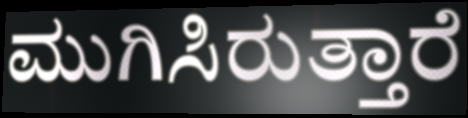
ಮುಗಿಸಿರುತ್ತಾರೆ